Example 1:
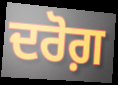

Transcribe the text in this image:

ਦਰੋਗ਼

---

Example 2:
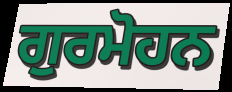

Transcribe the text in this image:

ਗੁਰਮੋਹਨ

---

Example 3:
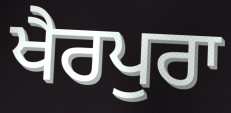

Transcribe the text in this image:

ਖੈਰਪੁਰਾ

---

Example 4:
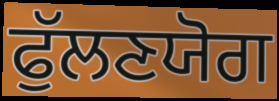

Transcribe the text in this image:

ਫੁੱਲਣਯੋਗ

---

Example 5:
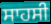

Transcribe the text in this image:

ਸਾਹਸੀ